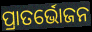
ପ୍ରାତର୍ଭୋଜନ